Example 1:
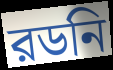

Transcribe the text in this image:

রডনি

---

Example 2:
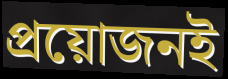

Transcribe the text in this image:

প্রয়োজনই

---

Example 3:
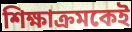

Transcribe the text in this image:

শিক্ষাক্রমকেই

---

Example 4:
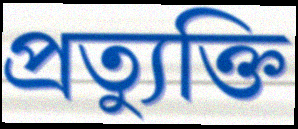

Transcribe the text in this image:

প্রত্যুক্তি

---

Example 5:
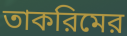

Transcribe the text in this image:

তাকরিমের